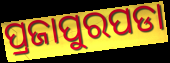
ପ୍ରଜାପୁରପଡା